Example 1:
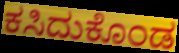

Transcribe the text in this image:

ಕಸಿದುಕೊಂಡ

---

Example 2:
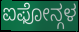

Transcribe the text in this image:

ಐಫೋನ್ಗಳ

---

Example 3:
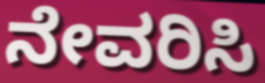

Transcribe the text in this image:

ನೇವರಿಸಿ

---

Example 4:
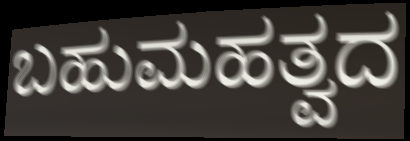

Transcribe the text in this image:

ಬಹುಮಹತ್ವದ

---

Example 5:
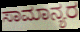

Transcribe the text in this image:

ಸಾಮಾನ್ಯರ